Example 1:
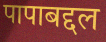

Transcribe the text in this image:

पापाबद्दल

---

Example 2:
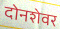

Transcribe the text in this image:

दोनशेवर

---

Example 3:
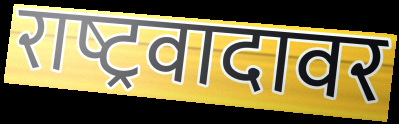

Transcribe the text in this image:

राष्ट्रवादावर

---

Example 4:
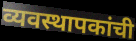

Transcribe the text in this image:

व्यवस्थापकांची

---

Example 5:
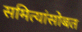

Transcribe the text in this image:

समित्यांसोबत